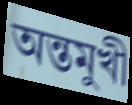
অন্তমুখী